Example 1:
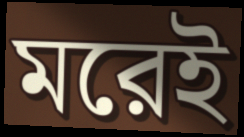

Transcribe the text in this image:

মরেই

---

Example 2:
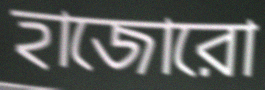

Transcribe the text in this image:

হাজোরো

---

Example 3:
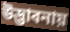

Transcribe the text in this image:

উদ্ভাবনায়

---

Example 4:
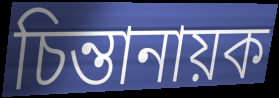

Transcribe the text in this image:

চিন্তানায়ক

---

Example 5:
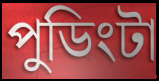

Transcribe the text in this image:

পুডিংটা